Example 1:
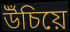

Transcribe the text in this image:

উঁচিয়ে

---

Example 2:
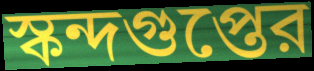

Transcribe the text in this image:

স্কন্দগুপ্তের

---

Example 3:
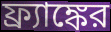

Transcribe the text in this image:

ফ্র্যাঙ্কের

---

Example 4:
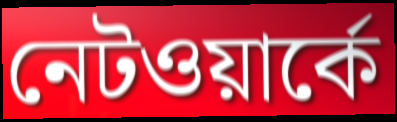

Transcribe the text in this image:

নেটওয়ার্কে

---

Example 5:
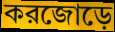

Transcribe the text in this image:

করজোড়ে